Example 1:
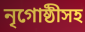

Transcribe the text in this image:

নৃগোষ্ঠীসহ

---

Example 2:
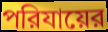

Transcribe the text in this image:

পরিযায়ের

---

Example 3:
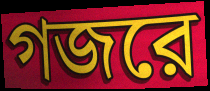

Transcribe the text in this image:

গজরে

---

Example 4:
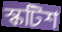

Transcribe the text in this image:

স্কটিশ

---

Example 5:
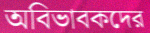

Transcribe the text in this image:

অবিভাবকদের